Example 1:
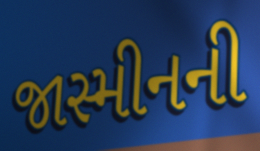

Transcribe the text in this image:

જાસ્મીનની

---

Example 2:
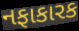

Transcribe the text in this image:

નફાકારક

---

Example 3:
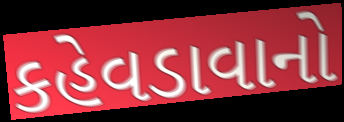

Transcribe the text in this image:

કહેવડાવાનો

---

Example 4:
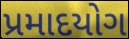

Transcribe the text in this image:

પ્રમાદયોગ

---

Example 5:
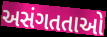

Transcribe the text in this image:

અસંગતતાઓ